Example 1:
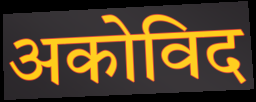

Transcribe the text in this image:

अकोविद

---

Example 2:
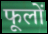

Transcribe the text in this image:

फूलों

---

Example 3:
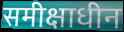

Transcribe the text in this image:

समीक्षाधीन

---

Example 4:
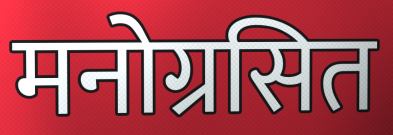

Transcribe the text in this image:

मनोग्रसित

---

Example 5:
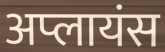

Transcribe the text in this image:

अप्‍लायंस